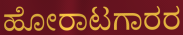
ಹೋರಾಟಗಾರರ